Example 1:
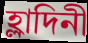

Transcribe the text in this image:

হ্লাদিনী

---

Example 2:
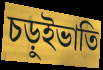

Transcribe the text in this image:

চড়ুইভাতি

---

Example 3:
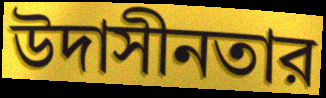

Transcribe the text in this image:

উদাসীনতার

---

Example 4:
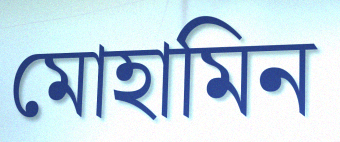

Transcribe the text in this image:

মোহামিন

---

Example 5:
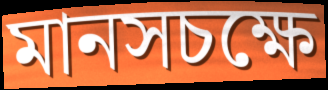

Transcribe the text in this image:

মানসচক্ষে